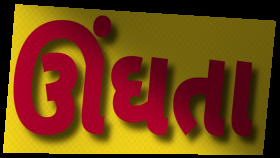
ઊંઘતા